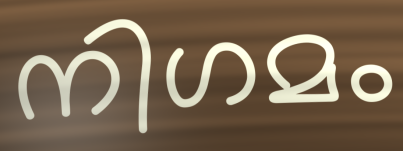
നിഗമം